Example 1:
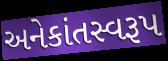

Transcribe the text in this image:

અનેકાંતસ્વરૂપ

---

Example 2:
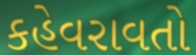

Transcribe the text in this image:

કહેવરાવતો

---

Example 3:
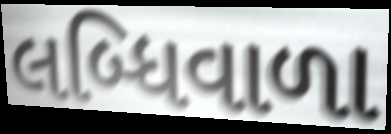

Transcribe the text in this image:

લબ્ધિવાળા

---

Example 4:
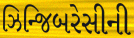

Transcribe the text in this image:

ઝિન્જિબરેસીની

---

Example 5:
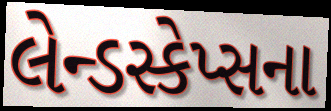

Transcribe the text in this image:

લેન્ડસ્કેપ્સના